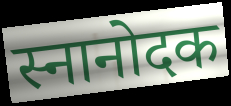
स्नानोदक